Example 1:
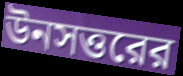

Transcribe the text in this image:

উনসত্তরের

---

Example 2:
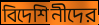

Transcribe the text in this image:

বিদেশিনীদের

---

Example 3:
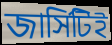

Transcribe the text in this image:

জার্সিটিই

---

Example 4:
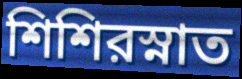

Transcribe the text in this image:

শিশিরস্নাত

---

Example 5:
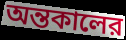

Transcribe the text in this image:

অন্তকালের